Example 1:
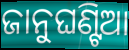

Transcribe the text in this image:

ଜାନୁଘଣ୍ଟିଆ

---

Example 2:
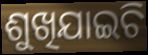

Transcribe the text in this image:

ଶୁଖିଯାଇଚି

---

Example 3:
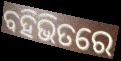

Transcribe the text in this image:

ବହିଭିତରେ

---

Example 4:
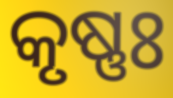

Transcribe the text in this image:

କୃଷ୍ଣଃ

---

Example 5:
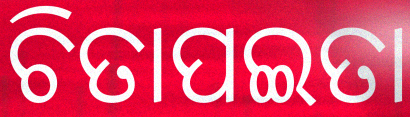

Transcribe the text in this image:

ଚିତାପଇତା